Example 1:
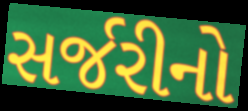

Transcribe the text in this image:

સર્જરીનો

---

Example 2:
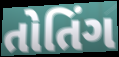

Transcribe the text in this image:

તોતિંગ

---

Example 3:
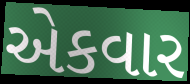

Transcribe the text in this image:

એકવાર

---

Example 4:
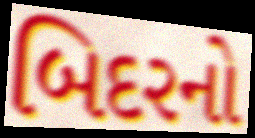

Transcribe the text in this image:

બિદરનો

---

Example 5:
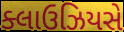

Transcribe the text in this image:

ક્લાઉઝિયસે